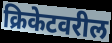
क्रिकेटवरील